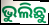
ଭୁଲିଛୁ